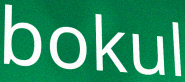
bokul